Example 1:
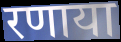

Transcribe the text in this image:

रणाया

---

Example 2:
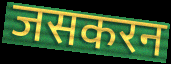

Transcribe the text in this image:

जसकरन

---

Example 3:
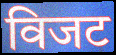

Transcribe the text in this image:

विजट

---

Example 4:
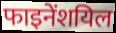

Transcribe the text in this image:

फाइनेंशयिल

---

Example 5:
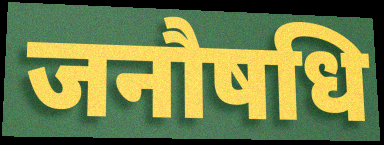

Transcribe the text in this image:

जनौषधि